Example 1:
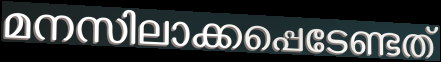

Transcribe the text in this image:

മനസിലാക്കപ്പെടേണ്ടത്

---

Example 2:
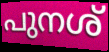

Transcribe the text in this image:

പുനശ്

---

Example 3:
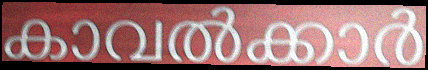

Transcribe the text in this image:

കാവൽക്കാർ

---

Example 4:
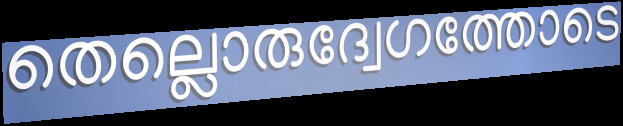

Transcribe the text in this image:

തെല്ലൊരുദ്വേഗത്തോടെ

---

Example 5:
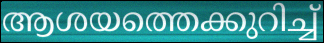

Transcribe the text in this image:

ആശയത്തെക്കുറിച്ച്